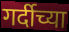
गर्दीच्या